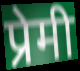
प्रेमी